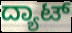
ದ್ಯಾಟ್